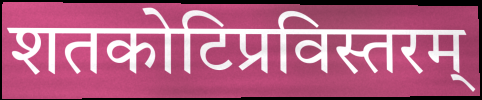
शतकोटिप्रविस्तरम्